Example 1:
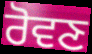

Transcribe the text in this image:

ਰੋਵਣ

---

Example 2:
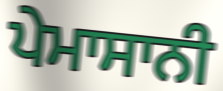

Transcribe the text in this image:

ਪੇਮਾਸਾਨੀ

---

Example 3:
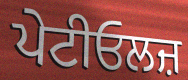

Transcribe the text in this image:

ਪੇਟੀਓਲਜ਼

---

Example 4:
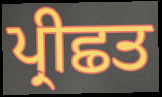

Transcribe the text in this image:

ਪ੍ਰੀਛਤ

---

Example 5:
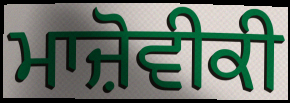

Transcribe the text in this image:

ਮਾਜ਼ੋਵੀਕੀ